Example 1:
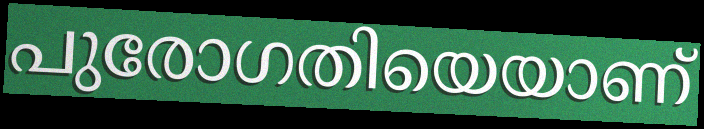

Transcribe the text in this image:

പുരോഗതിയെയാണ്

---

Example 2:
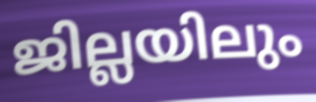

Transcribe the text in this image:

ജില്ലയിലും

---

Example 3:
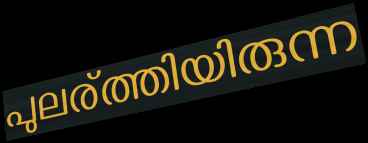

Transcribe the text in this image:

പുലര്ത്തിയിരുന്ന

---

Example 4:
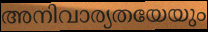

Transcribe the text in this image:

അനിവാര്യതയേയും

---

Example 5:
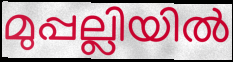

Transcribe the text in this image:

മുപ്പല്ലിയിൽ